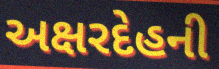
અક્ષરદેહની